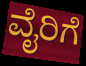
ವೈರಿಗೆ